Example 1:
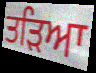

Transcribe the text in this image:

ਤੜਿਆ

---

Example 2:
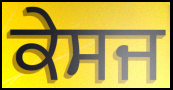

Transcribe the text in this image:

ਕੇਸਜ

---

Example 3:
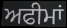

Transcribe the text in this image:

ਅਫੀਮਾਂ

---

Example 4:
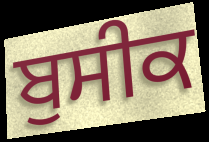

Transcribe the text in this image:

ਬੁਸੀਕ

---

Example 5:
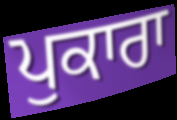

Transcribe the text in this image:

ਪੁਕਾਰਾ